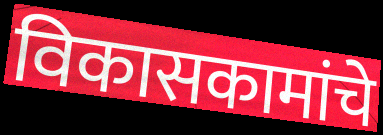
विकासकामांचे